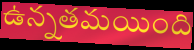
ఉన్నతమయింది